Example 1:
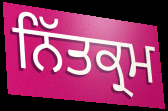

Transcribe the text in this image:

ਨਿੱਤਕ੍ਰਮ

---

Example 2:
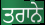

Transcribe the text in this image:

ਤਰਾਨੇ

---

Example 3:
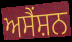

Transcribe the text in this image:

ਅਸੈਂਸ਼ਨ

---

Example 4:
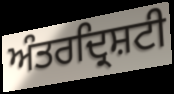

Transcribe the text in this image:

ਅੰਤਰਦ੍ਰਿਸ਼ਟੀ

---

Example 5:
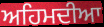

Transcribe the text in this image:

ਅਹਿਮਦੀਆ